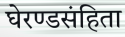
घेरण्डसंहिता